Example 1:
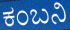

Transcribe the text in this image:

ಕಂಬನಿ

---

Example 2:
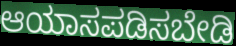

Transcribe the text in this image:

ಆಯಾಸಪಡಿಸಬೇಡಿ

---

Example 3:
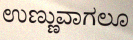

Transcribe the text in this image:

ಉಣ್ಣುವಾಗಲೂ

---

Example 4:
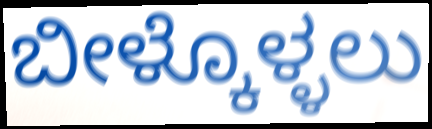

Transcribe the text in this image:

ಬೀಳ್ಕೊಳ್ಳಲು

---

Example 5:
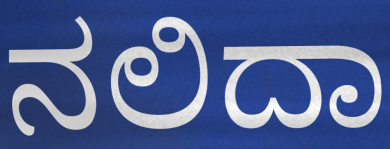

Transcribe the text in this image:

ನಲಿದಾ